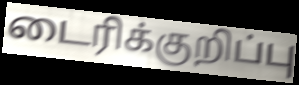
டைரிக்குறிப்பு